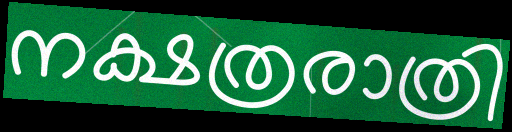
നക്ഷത്രരാത്രി